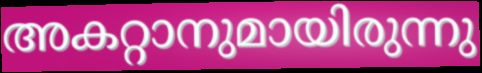
അകറ്റാനുമായിരുന്നു